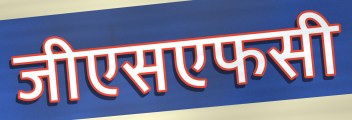
जीएसएफसी